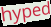
hyped